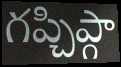
గప్చిప్గా